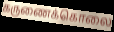
கருணைக்கொலை